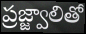
ప్రజ్జ్వాలితో